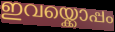
ഇവയ്ക്കൊപ്പം